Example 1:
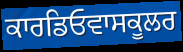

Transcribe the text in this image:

ਕਾਰਡਿਓਵਾਸਕੂਲਰ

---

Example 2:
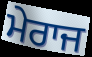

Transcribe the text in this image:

ਮੇਰਾਜ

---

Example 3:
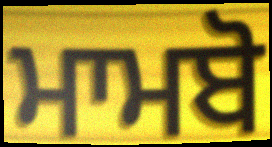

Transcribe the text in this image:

ਮਾਮਬੋ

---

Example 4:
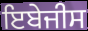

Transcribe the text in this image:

ਇਬੇਜੀਸ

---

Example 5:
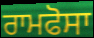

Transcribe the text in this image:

ਰਾਮਫੋਸਾ